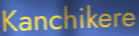
Kanchikere